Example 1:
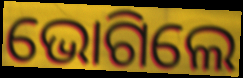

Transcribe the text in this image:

ଭୋଗିଲେ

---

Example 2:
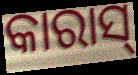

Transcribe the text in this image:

କାରାସ୍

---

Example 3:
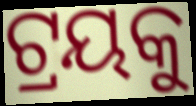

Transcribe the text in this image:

ଟ୍ରୟକୁ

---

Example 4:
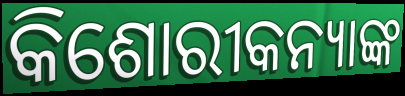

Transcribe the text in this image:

କିଶୋରୀକନ୍ୟାଙ୍କ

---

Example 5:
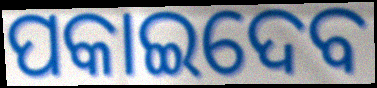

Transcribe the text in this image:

ପକାଇଦେବ